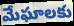
మేఘాలకు